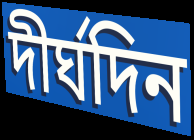
দীৰ্ঘদিন